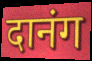
दानंग